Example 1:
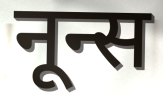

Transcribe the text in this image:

नून्स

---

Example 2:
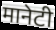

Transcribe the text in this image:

मानेटी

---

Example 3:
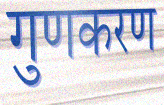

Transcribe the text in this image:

गुणकरण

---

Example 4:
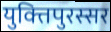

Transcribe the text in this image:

युक्तिपुरस्सर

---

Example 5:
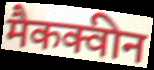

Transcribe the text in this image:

मैकक्वीन